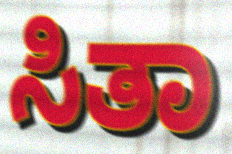
ಸಿತಾ